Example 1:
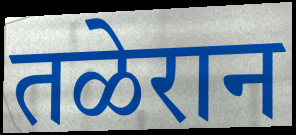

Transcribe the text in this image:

तळेरान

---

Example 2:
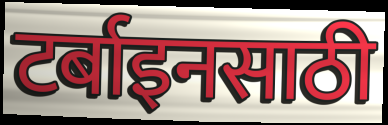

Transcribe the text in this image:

टर्बाइनसाठी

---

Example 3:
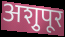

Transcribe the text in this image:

अश्रुपूर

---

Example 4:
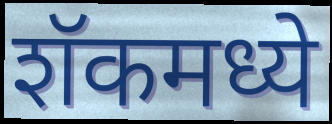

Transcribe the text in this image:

शॅकमध्ये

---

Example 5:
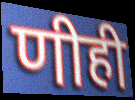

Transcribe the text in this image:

णीही